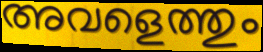
അവളെത്തും